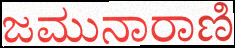
ಜಮುನಾರಾಣಿ